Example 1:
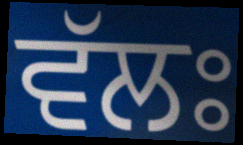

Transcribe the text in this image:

ਵੱਲਃ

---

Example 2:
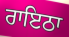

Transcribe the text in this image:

ਰਾਇਠਾ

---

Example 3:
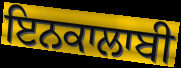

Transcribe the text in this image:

ਇਨਕਾਲਾਬੀ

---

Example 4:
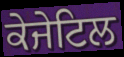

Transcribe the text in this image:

ਕੇਜੇਟਿਲ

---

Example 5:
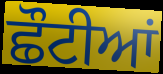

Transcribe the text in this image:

ਛੌਟੀਆਂ